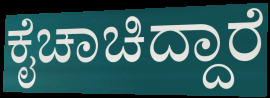
ಕೈಚಾಚಿದ್ದಾರೆ